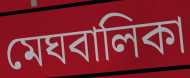
মেঘবালিকা